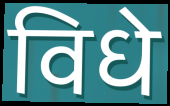
विधे